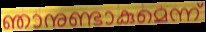
ഞാനുണ്ടാകുമെന്ന്